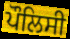
ਪੌਲਿਸੀ